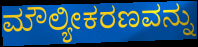
ಮೌಲ್ಯೀಕರಣವನ್ನು